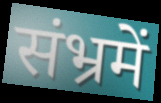
संभ्रमें